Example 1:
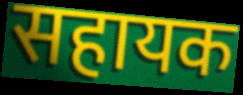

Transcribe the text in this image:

सहायक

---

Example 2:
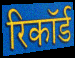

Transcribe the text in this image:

रिकॉर्ड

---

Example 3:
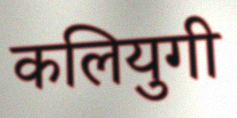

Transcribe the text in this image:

कलियुगी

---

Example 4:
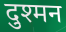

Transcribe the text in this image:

दुश्मन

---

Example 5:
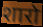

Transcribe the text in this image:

शारो